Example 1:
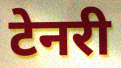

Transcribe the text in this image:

टेनरी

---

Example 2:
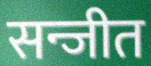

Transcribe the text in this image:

सन्जीत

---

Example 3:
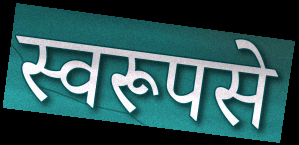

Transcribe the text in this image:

स्वरूपसे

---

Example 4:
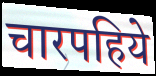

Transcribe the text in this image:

चारपहिये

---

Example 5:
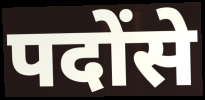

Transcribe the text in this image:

पदोंसे